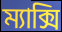
ম্যাক্সি